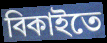
বিকাইতে